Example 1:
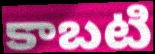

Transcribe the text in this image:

కాబటి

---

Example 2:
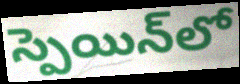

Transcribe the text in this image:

స్పెయిన్‌లో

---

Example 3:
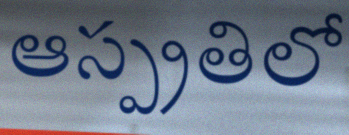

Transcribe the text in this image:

ఆస్ప్రతిలో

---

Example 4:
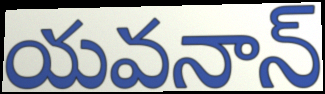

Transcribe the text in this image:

యవనాన్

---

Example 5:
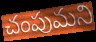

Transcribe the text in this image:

చంపుమని